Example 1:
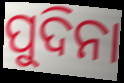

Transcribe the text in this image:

ପୁଦିନା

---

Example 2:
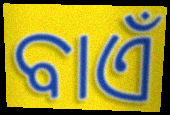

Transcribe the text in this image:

ବାଏଁ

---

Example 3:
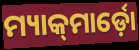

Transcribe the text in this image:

ମ୍ୟାକ୍‍ମାର୍ଡ଼ୋ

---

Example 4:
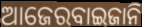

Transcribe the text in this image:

ଆଜେରବାଇଜାନି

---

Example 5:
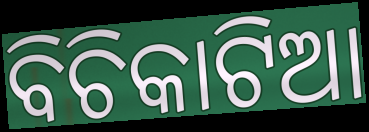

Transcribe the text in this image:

ବିଚିକାଟିଆ